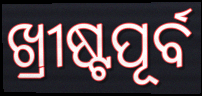
ଖ୍ରୀଷ୍ଟପୂର୍ବ